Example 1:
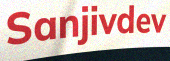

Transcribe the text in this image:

Sanjivdev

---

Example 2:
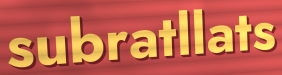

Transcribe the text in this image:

subratllats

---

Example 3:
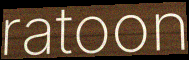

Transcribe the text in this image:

ratoon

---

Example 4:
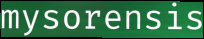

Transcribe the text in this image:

mysorensis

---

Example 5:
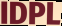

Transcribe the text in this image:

IDPL